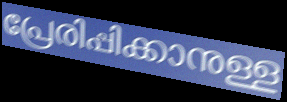
പ്രേരിപ്പിക്കാനുള്ള